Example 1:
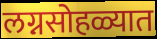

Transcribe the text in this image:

लग्नसोहळ्यात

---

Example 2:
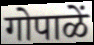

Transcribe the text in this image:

गोपाळें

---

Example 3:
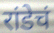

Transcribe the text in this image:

रांडेचं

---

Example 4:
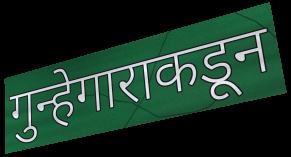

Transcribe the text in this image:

गुन्हेगाराकडून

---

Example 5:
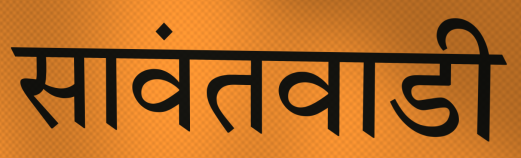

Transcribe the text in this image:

सावंतवाडी